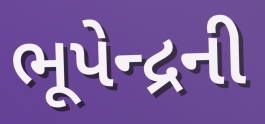
ભૂપેન્દ્રની